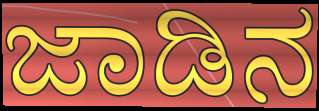
ಜಾಡಿನ